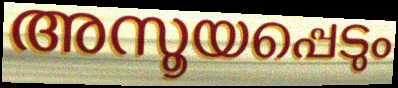
അസൂയപ്പെടും